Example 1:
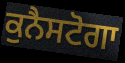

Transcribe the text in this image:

ਕੁਨੈਸਟੋਗਾ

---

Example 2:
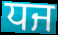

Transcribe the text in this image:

ਧਜ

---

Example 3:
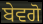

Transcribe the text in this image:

ਬੇਵਗੋ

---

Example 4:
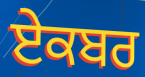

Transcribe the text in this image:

ਏਕਬਰ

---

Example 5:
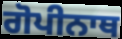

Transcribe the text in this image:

ਗੋਪੀਨਾਥ